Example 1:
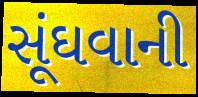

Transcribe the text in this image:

સૂંઘવાની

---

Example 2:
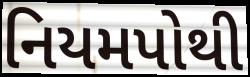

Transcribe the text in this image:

નિયમપોથી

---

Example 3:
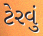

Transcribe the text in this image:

ટેરવું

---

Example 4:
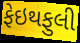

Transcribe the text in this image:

ફેઇથફુલી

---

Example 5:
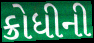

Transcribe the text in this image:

ક્રોધીની